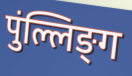
पुंल्लिङ्ग